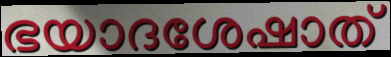
ഭയാദശേഷാത്